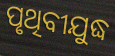
ପୃଥିବୀଯୁଦ୍ଧ